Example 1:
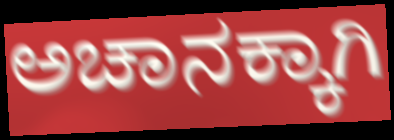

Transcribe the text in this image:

ಅಚಾನಕ್ಕಾಗಿ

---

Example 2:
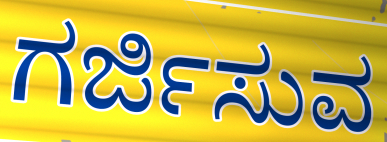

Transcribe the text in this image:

ಗರ್ಜಿಸುವ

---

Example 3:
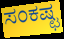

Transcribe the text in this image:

ಸಂಕಷ್ಟ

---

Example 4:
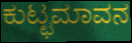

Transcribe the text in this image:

ಕುಟ್ಟಮಾವನ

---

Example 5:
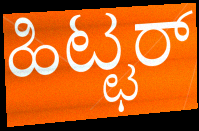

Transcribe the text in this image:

ಹಿಟ್ಟರ್